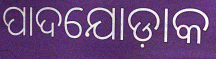
ପାଦଯୋଡ଼ାକ